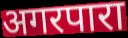
अगरपारा